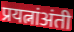
प्रयत्नांअंती